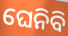
ଘେନିବି